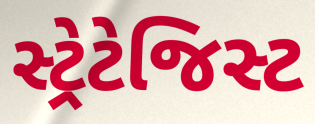
સ્ટ્રેટેજિસ્ટ